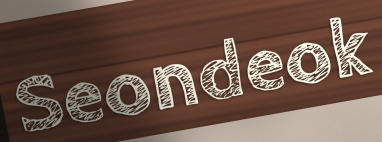
Seondeok